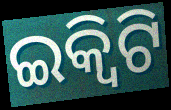
ଇକ୍ବିଟି